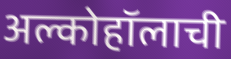
अल्कोहॉलाची